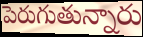
పెరుగుతున్నారు